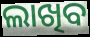
ଲାଖିବ